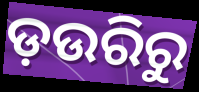
ଡ଼ଉରିରୁ